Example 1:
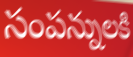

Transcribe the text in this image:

సంపన్నులకి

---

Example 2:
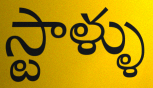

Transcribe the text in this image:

స్టాళ్ళు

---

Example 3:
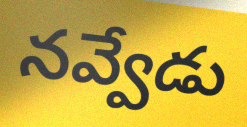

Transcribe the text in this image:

నవ్వేడు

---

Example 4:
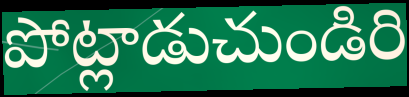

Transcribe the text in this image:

పోట్లాడుచుండిరి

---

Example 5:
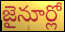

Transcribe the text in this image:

జైనూర్లో